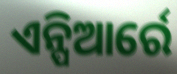
ଏନ୍ପିଆର୍ରେ